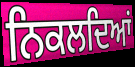
ਨਿਕਲਦਿਆਂ